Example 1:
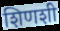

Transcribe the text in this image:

शिणशी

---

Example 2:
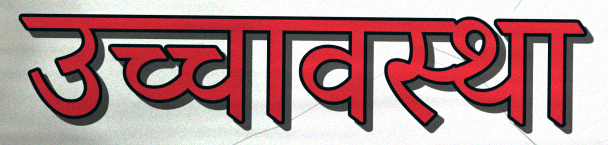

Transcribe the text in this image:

उच्चावस्था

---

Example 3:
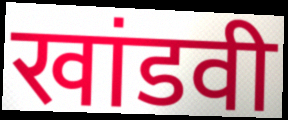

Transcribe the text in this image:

खांडवी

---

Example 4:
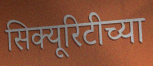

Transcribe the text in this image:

सिक्यूरिटीच्या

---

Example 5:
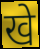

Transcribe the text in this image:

खे